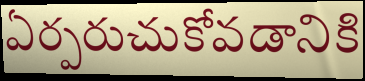
ఏర్పరుచుకోవడానికి